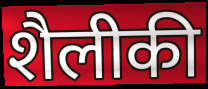
शैलीकी